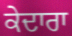
ਕੇਦਾਰਾ